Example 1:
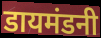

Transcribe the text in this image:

डायमंडनी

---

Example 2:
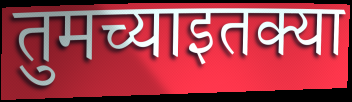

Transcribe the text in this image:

तुमच्याइतक्या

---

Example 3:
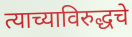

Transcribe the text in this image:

त्याच्याविरुद्धचे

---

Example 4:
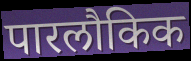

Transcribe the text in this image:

पारलौकिक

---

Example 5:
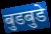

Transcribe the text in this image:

बुडबुडे